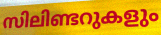
സിലിണ്ടറുകളും